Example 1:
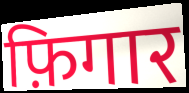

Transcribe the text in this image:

फ़िगार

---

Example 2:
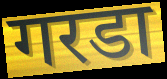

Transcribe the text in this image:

गरडा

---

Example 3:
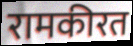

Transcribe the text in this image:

रामकीरत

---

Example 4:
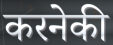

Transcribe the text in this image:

करनेकी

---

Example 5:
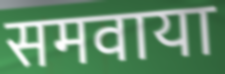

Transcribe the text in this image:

समवाया